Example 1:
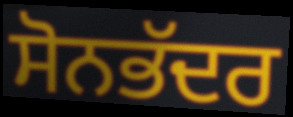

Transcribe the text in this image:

ਸੋਨਭੱਦਰ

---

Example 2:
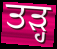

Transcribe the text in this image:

ਤੜ੍ਹ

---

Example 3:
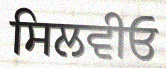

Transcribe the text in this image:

ਸਿਲਵੀਓ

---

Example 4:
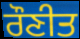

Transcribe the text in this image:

ਰੌਣੀਤ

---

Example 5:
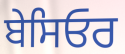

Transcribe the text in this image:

ਬੇਸਿਓਰ